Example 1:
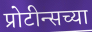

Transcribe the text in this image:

प्रोटीन्सच्या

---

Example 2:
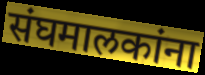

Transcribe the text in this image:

संघमालकांना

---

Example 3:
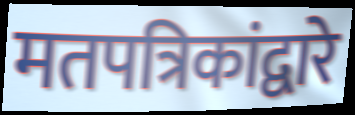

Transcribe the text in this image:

मतपत्रिकांद्वारे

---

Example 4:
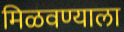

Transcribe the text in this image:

मिळवण्याला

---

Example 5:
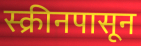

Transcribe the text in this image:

स्क्रीनपासून